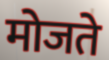
मोजते